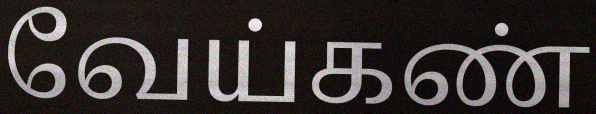
வேய்கண்